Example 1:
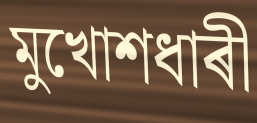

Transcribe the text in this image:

মুখোশধাৰী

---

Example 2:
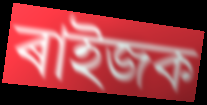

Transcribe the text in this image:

ৰাইজক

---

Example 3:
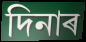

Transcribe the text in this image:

দিনাৰ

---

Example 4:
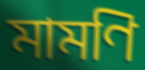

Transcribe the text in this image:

মামণি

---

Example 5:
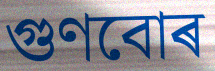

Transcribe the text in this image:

গুণবোৰ